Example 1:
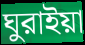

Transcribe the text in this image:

ঘুরাইয়া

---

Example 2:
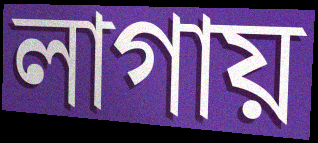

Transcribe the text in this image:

লাগায়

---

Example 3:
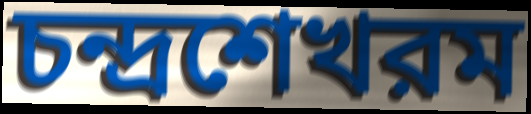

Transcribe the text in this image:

চন্দ্রশেখরম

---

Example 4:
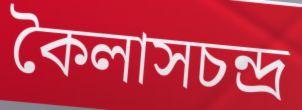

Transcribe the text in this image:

কৈলাসচন্দ্র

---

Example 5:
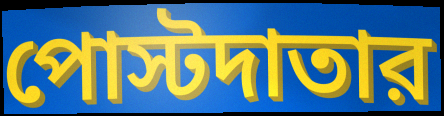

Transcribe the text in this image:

পোস্টদাতার